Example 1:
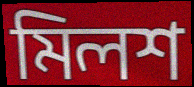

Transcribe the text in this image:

মিলশ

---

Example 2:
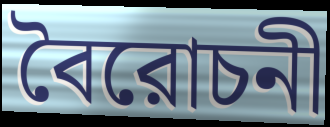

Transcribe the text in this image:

বৈরোচনী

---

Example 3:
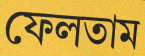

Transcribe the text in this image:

ফেলতাম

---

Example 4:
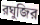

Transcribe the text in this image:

রঘুজির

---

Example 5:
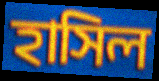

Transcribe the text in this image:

হাসিল